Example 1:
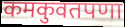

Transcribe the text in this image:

कमकुवतपणा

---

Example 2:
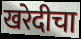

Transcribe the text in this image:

खरेदीचा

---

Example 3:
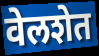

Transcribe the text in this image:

वेलशेत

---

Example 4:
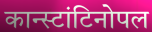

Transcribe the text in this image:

कान्स्टांटिनोपल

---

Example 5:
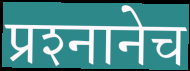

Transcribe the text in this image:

प्रश्नानेच